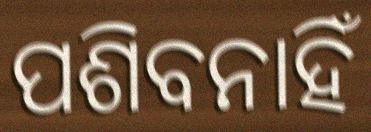
ପଶିବନାହିଁ